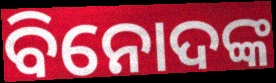
ବିନୋଦଙ୍କ